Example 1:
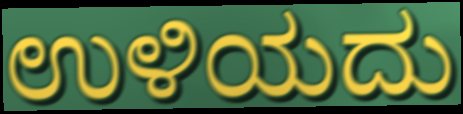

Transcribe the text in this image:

ಉಳಿಯದು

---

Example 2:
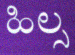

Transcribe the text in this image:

ಹಿಲ್ಸ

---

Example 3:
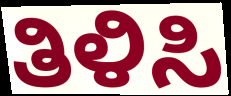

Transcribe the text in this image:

ತಿಳಿಸಿ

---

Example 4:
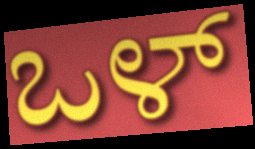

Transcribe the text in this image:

ಒಳ್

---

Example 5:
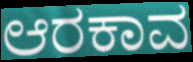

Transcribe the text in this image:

ಆರಕಾವ